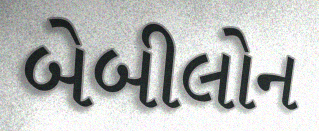
બેબીલોન